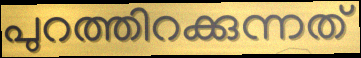
പുറത്തിറക്കുന്നത്